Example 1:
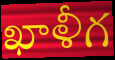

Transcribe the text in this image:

ఖాళీగ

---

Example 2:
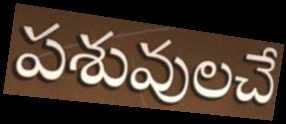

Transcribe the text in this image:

పశువులచే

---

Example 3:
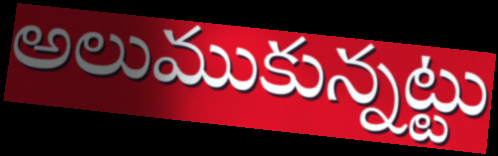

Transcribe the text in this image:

అలుముకున్నట్టు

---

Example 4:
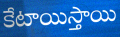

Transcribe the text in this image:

కేటాయిస్తాయి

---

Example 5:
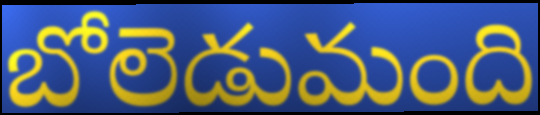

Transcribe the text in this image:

బోలెడుమంది